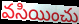
వసియించు